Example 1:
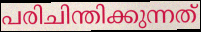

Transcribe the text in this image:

പരിചിന്തിക്കുന്നത്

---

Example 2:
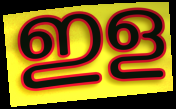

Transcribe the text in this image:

ഇള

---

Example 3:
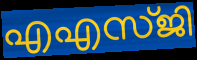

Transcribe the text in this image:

എഎസ്ജി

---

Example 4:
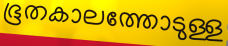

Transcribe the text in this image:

ഭൂതകാലത്തോടുള്ള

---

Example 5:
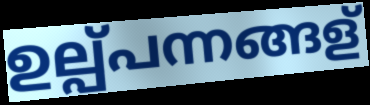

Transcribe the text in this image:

ഉല്പ്പന്നങ്ങള്